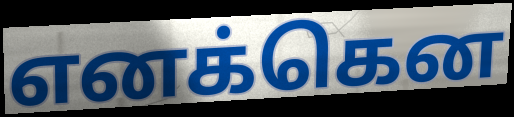
எனக்கென